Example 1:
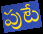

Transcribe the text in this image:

పుటే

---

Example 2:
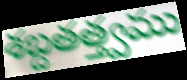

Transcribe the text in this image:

శబ్దతత్త్వము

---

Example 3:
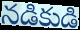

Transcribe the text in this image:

నడికుడి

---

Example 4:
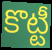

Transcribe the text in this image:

కొట్టీ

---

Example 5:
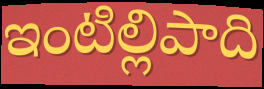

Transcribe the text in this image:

ఇంటిల్లిపాది